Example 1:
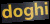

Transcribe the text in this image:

doghi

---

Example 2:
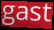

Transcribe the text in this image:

gast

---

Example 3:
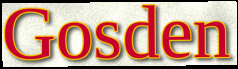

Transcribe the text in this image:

Gosden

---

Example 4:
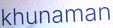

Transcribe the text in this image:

khunaman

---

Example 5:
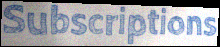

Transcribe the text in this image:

Subscriptions